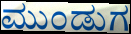
ಮುಂಡುಗ